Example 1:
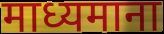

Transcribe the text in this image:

माध्यमाना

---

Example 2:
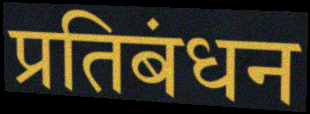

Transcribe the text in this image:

प्रतिबंधन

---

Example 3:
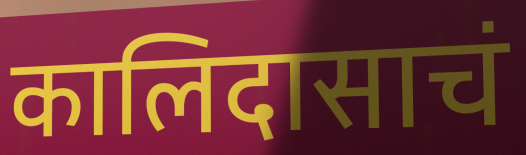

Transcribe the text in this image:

कालिदासाचं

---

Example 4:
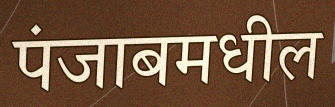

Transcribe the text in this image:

पंजाबमधील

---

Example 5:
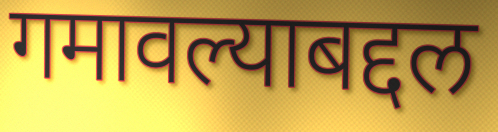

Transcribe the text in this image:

गमावल्याबद्दल